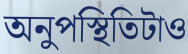
অনুপস্থিতিটাও